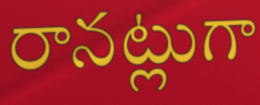
రానట్లుగా